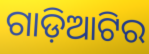
ଗାଡ଼ିଆଟିର